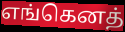
எங்கெனத்